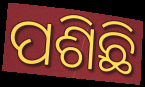
ପଶିଛି